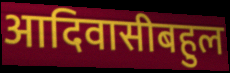
आदिवासीबहुल